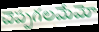
చెప్పగలమేమో